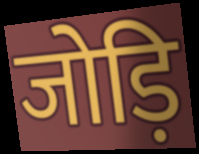
जोड़ि